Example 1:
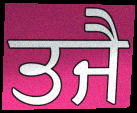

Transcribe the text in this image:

ਤਜੈ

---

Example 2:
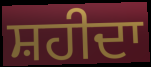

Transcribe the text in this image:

ਸ਼ਹੀਦਾ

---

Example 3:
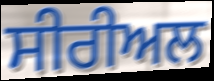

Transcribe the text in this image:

ਸੀਰੀਅਲ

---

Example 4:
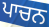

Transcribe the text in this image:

ਪਾਚਨ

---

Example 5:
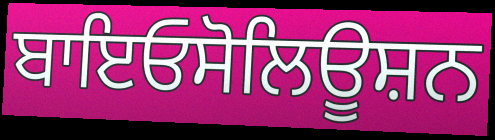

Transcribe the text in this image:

ਬਾਇਓਸੋਲਿਊਸ਼ਨ